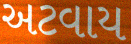
અટવાય